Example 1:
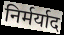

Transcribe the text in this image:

निर्मर्याद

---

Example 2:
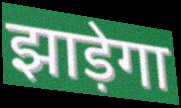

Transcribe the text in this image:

झाड़ेगा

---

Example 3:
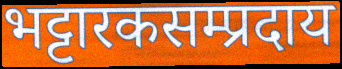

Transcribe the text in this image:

भट्टारकसम्प्रदाय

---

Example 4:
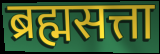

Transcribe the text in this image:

ब्रह्मसत्ता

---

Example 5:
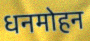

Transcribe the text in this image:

धनमोहन